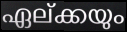
ഏല്ക്കയും